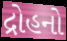
દ્રોહનો